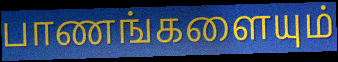
பாணங்களையும்